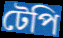
টেপি